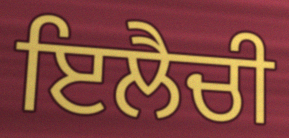
ਇਲੈਚੀ